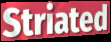
Striated